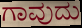
ಗಾವುದು